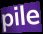
pile